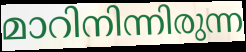
മാറിനിന്നിരുന്ന